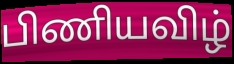
பிணியவிழ்